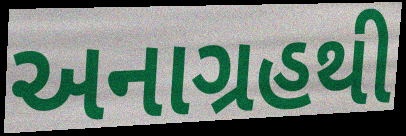
અનાગ્રહથી